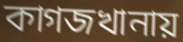
কাগজখানায়